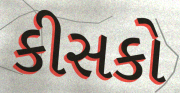
કીસકો